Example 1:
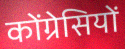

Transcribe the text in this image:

कोंग्रेसियों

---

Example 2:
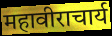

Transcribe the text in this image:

महावीराचार्य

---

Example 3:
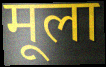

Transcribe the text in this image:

मूला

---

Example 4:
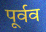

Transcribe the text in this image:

पूर्वव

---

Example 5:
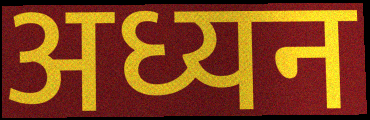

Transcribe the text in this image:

अध्यन